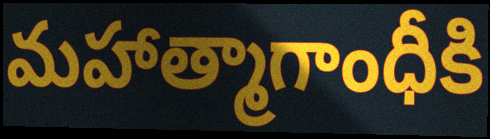
మహాత్మాగాంధీకి